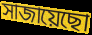
সাজায়েছো